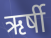
ऋर्षी